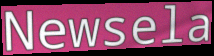
Newsela